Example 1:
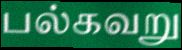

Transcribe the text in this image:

பல்கவறு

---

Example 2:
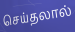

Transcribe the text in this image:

செய்தலால்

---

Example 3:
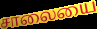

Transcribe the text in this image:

சாலையை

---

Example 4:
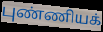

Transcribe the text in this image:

புண்ணியக்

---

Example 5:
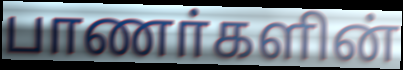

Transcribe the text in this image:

பாணர்களின்